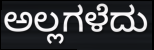
ಅಲ್ಲಗಳೆದು